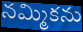
నమ్మికను